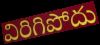
విరిగిపోదు